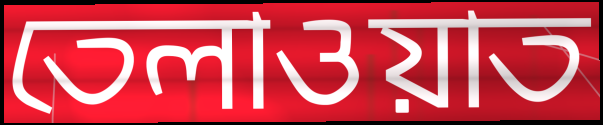
তেলাওয়াত